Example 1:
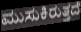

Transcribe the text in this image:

ಮುಸುಕಿರುತ್ತದೆ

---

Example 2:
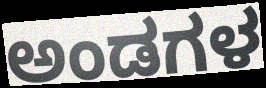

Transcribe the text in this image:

ಅಂಡಗಳ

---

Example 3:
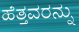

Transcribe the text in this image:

ಹೆತ್ತವರನ್ನು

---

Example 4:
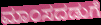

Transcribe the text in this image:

ಮಾಂಸದಡುಗೆ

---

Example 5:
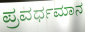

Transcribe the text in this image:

ಪ್ರವರ್ಧಮಾನ